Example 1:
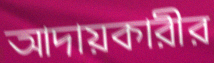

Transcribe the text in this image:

আদায়কারীর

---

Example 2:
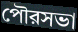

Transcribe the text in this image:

পৌরসভা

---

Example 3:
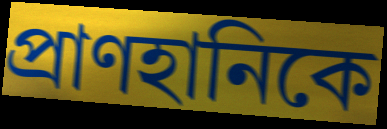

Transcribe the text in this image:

প্রাণহানিকে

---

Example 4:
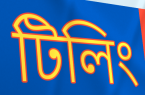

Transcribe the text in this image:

টিলিং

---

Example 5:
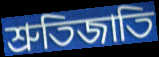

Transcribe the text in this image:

শ্রুতিজাতি